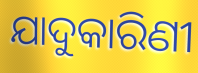
ଯାଦୁକାରିଣୀ